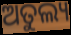
ଅତୁଲ୍ୟ